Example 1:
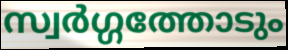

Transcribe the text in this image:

സ്വർഗ്ഗത്തോടും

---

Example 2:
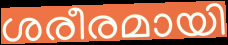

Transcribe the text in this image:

ശരീരമായി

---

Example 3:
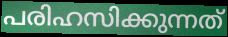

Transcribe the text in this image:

പരിഹസിക്കുന്നത്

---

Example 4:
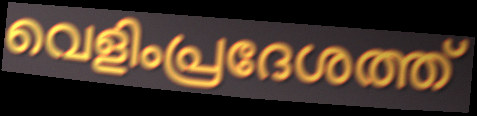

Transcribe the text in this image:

വെളിംപ്രദേശത്ത്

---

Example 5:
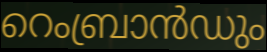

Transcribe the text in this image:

റെംബ്രാൻഡും